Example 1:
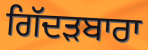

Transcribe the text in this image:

ਗਿੱਦੜਬਾਰਾ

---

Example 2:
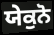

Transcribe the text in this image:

ਯੇਕੁਨੋ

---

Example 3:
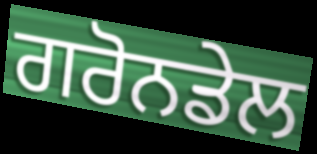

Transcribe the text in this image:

ਗਰੋਨਡੇਲ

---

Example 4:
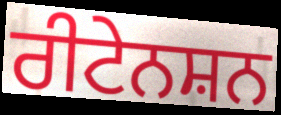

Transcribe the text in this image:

ਰੀਟੇਨਸ਼ਨ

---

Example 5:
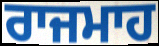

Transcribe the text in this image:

ਰਾਜਮਾਹ